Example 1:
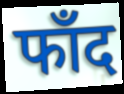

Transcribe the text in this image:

फाँद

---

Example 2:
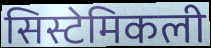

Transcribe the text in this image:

सिस्टेमिकली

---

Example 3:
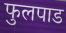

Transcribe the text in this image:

फुलपाड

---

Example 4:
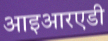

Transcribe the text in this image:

आइआरएडी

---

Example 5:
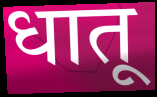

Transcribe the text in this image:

धातू